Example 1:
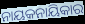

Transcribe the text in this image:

ନାୟକନାୟିକାର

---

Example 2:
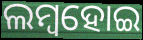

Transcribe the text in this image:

ଲମ୍ୱହୋଇ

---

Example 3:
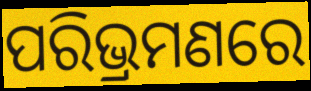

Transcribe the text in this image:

ପରିଭ୍ରମଣରେ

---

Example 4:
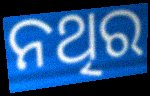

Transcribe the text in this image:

ନଥିର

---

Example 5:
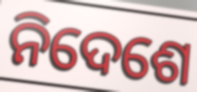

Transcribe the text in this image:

ନିଦେଶେ